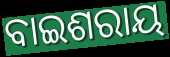
ବାଇଶରାୟ